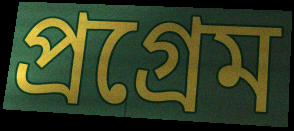
প্ৰগ্ৰেম